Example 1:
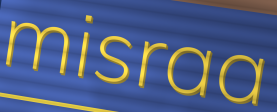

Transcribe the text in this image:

misraa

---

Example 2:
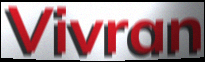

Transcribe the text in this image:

Vivran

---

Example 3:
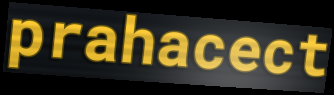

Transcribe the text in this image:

prahacect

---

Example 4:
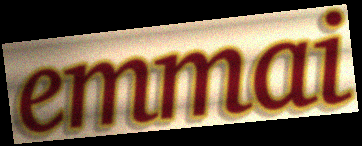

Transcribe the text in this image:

emmai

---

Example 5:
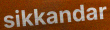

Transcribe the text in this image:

sikkandar